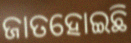
ଜାତହୋଇଛି